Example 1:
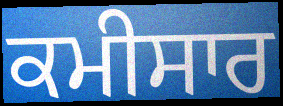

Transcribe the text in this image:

ਕਮੀਸਾਰ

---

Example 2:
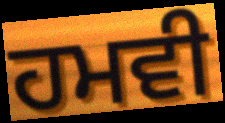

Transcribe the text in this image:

ਹਮਵੀ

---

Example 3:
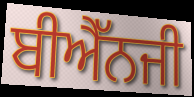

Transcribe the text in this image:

ਬੀਐੱਨਜੀ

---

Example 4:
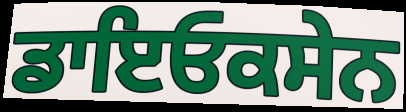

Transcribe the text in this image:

ਡਾਇਓਕਸੇਨ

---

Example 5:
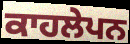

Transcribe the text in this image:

ਕਾਹਲੇਪਨ